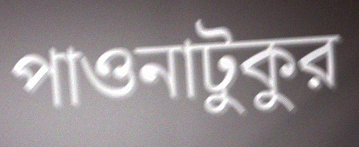
পাওনাটুকুর